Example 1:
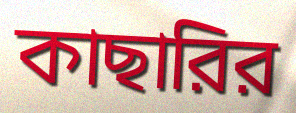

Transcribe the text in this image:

কাছারির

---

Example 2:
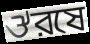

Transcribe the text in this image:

ঔরষে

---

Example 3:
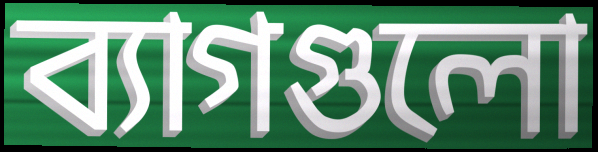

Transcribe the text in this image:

ব্যাগগুলো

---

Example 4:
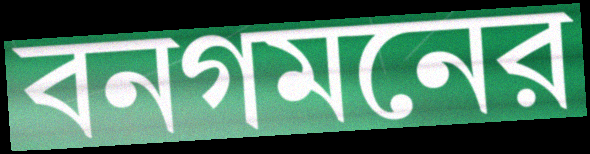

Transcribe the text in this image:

বনগমনের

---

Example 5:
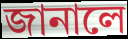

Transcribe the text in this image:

জানালে